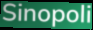
Sinopoli